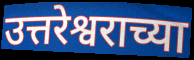
उत्तरेश्वराच्या